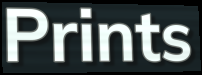
Prints